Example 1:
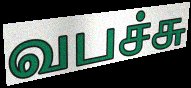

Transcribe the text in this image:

வபச்சு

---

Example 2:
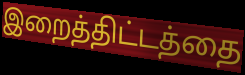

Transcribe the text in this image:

இறைத்திட்டத்தை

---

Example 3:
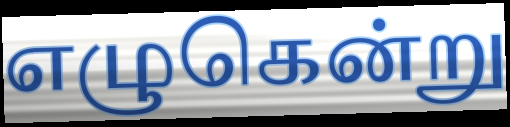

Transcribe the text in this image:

எழுகென்று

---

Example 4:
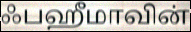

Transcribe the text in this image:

ஃபஹீமாவின்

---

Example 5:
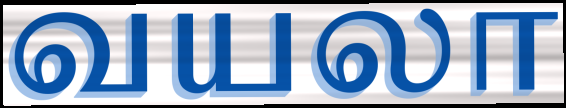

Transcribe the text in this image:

வயலா